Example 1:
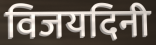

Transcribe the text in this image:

विजयदिनी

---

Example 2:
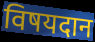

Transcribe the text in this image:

विषयदान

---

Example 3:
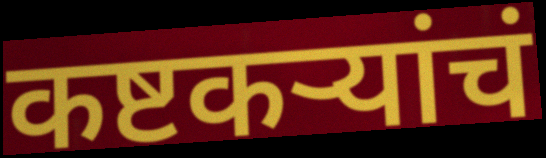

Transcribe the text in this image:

कष्टकऱ्यांचं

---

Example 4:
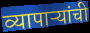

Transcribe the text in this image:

व्यापाऱ्यांची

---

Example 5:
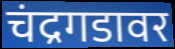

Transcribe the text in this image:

चंद्रगडावर